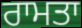
ਰਾਮਤਾ